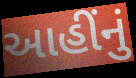
આહીંનું